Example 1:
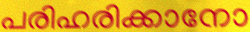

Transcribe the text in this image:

പരിഹരിക്കാനോ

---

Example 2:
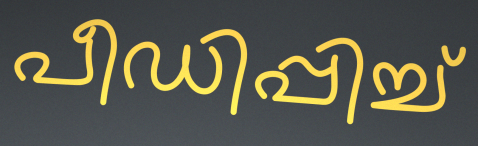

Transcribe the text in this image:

പീഡിപ്പിച്ച്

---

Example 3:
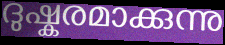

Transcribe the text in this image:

ദുഷ്കരമാക്കുന്നു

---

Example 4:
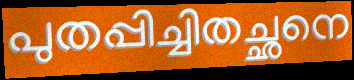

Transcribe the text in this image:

പുതപ്പിച്ചിതച്ഛനെ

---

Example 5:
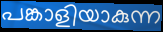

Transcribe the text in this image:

പങ്കാളിയാകുന്ന